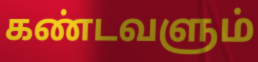
கண்டவளும்